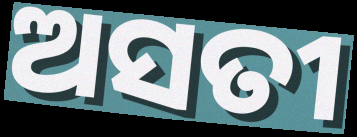
ଅସତୀ